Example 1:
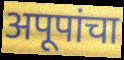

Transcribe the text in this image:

अपूपांचा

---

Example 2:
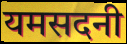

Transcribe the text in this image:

यमसदनी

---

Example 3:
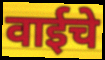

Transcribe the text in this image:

वाईचे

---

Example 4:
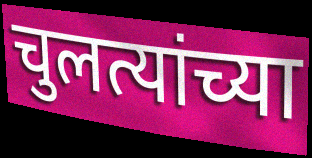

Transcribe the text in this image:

चुलत्यांच्या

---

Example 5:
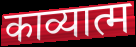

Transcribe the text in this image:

काव्यात्म